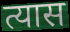
त्यास